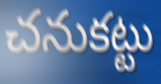
చనుకట్టు